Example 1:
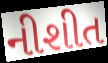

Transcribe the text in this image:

નીશીત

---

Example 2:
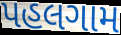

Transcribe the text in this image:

પહલગામ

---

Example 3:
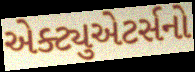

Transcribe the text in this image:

એક્ટ્યુએટર્સનો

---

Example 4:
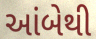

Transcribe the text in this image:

આંબેથી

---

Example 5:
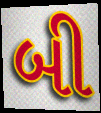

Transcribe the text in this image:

બી